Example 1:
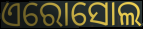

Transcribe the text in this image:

ଏରୋସୋଲ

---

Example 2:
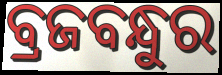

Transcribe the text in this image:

ବ୍ରଜବନ୍ଧୁର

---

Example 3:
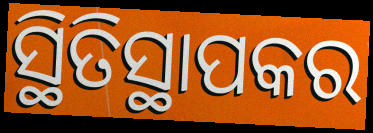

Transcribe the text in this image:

ସ୍ଥିତିସ୍ଥାପକର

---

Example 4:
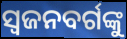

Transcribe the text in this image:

ସ୍ୱଜନବର୍ଗଙ୍କୁ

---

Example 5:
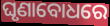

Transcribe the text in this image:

ଘୃଣାବୋଧରେ